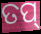
ତପ୍